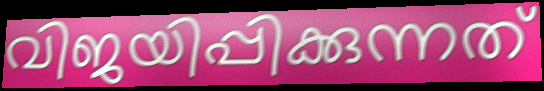
വിജയിപ്പിക്കുന്നത്